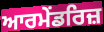
ਆਰਮੇਂਡਰਿਜ਼